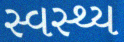
સ્વસ્થ્ય